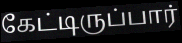
கேட்டிருப்பார்